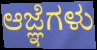
ಆಜ್ಞೆಗಳು